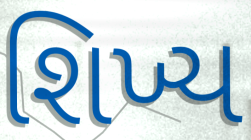
શિખ્ય